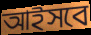
আইসবে